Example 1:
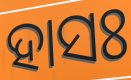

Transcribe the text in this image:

ହାସଃ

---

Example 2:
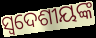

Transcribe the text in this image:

ସ୍ଵଦେଶୀୟଙ୍କ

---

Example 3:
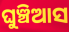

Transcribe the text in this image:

ଘୁଞ୍ଚିଆସ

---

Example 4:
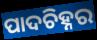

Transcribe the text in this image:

ପାଦଚିହ୍ନର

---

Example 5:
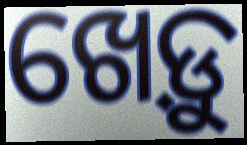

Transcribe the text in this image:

ଖେଡ଼ୁ